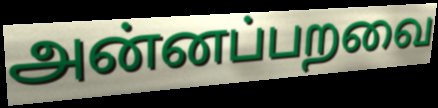
அன்னப்பறவை